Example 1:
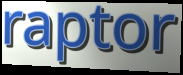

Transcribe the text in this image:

raptor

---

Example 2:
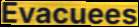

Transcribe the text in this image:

Evacuees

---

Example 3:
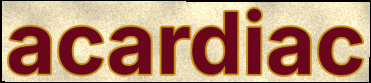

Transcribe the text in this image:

acardiac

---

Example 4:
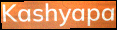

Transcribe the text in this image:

Kashyapa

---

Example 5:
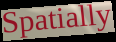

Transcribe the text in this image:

Spatially